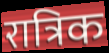
रात्रिक